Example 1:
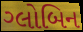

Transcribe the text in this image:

ગ્લોબિન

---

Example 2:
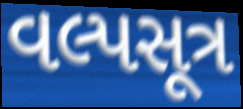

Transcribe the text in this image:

વલ્પસૂત્ર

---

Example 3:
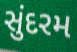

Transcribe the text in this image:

સુંદરમ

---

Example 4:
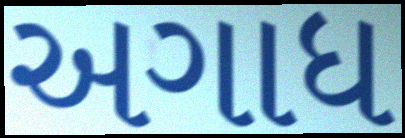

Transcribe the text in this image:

અગાધ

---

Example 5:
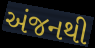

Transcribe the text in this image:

અંજનથી